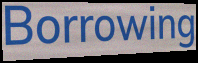
Borrowing